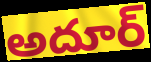
అదూర్